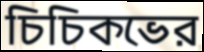
চিচিকভের